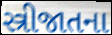
સ્ત્રીજાતના